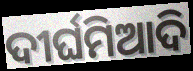
ଦୀର୍ଘମିଆଦି